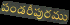
పండరీపురము